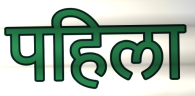
पहिला